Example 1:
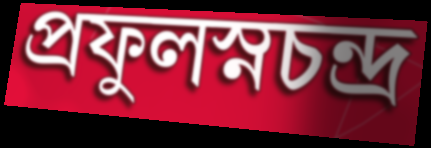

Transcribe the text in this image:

প্রফুলস্নচন্দ্র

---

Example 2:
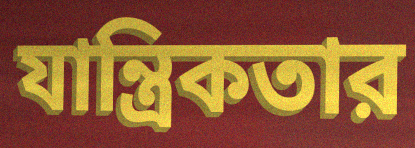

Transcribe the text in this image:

যান্ত্রিকতার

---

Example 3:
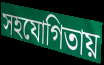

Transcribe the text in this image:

সহযোগিতায়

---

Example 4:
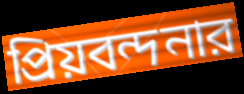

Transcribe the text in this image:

প্রিয়বন্দনার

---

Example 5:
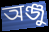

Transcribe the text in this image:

অঞ্জু